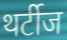
थर्टीज